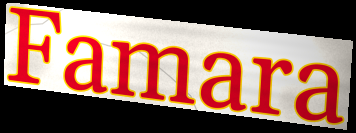
Famara